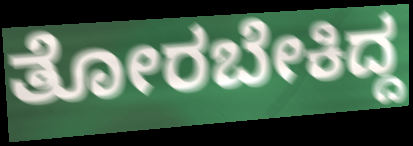
ತೋರಬೇಕಿದ್ದ